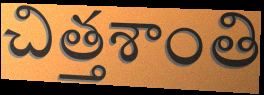
చిత్తశాంతి